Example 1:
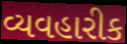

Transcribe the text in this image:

વ્યવહારીક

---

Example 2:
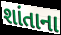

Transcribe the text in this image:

શાંતાના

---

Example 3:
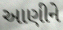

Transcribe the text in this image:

આણીને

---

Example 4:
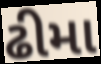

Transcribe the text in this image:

ઢીમા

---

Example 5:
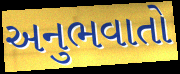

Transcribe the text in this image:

અનુભવાતો